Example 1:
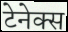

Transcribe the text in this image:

टेनेक्स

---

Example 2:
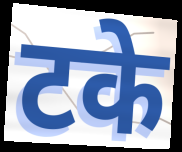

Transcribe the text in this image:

टके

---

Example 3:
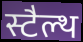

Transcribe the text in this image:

स्टैल्थ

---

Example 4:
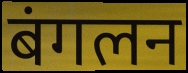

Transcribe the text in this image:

बंगलन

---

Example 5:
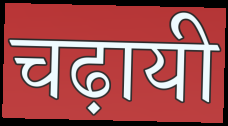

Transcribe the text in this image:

चढ़ायी